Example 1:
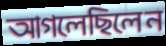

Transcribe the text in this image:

আগলেছিলেন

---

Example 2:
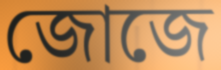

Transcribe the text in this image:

জোজে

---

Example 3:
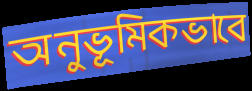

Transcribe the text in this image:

অনুভূমিকভাবে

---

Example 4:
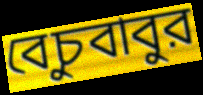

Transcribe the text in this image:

বেচুবাবুর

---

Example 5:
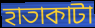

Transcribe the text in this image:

হাতাকাটা